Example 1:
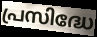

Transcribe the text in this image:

പ്രസിദ്ധേ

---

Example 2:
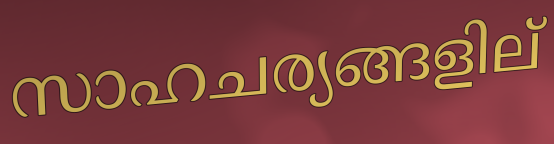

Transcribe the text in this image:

സാഹചര്യങ്ങളില്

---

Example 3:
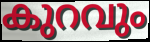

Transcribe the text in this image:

കുറവും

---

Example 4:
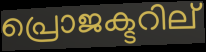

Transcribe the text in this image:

പ്രൊജക്ടറില്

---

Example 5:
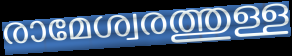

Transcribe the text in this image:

രാമേശ്വരത്തുള്ള